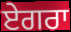
ਏਗਰਾ